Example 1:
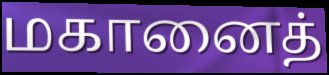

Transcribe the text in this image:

மகானைத்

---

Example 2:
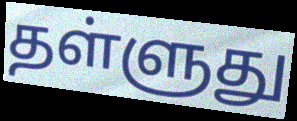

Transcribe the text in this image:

தள்ளுது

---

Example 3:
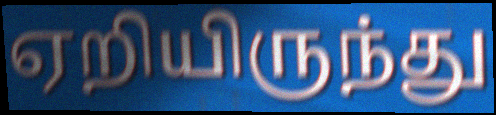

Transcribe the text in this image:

ஏறியிருந்து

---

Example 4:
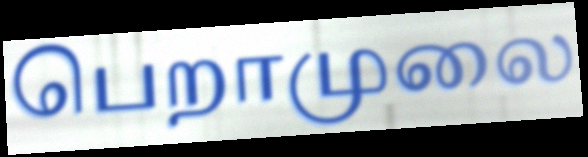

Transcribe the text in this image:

பெறாமுலை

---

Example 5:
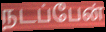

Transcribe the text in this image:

நடப்பேன்